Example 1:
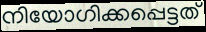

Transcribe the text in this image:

നിയോഗിക്കപ്പെട്ടത്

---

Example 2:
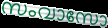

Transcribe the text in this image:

സംവാസോ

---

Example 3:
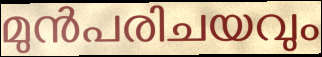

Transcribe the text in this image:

മുൻപരിചയവും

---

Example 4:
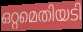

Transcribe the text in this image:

ഒറ്റമെതിയടി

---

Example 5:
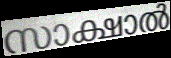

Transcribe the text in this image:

സാക്ഷാൽ